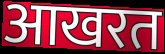
आखरत